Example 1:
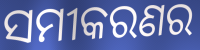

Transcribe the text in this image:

ସମୀକରଣର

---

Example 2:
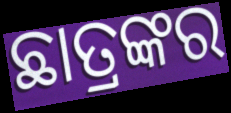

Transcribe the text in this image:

ଛାତ୍ରଙ୍କର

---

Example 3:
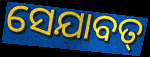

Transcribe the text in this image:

ସେଯାବତ୍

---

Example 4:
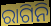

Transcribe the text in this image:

ରାଗିନି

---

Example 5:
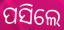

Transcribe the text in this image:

ପସିଲେ